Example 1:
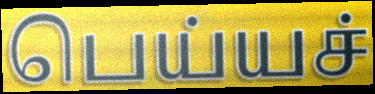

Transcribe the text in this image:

பெய்யச்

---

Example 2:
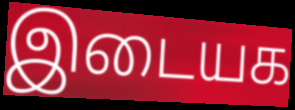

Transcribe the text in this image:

இடையக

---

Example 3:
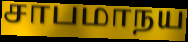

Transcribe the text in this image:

சாபமாநய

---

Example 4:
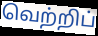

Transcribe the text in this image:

வெற்றிப்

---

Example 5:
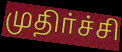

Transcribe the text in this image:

முதிர்ச்சி